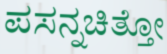
ಪಸನ್ನಚಿತ್ತೋ